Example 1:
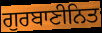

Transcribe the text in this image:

ਗੁਰਬਾਣੀਨਿਤ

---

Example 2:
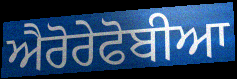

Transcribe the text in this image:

ਐਰੋਰੇਫੋਬੀਆ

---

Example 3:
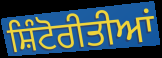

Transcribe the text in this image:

ਸ਼ਿੰਟੋਰੀਤੀਆਂ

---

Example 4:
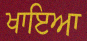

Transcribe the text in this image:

ਖਾਇਆ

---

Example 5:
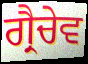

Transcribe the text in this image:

ਗ੍ਰੈਚੇਵ